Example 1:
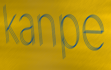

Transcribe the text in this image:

kanpe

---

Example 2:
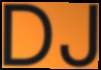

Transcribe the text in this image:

DJ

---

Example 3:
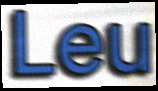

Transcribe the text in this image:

Leu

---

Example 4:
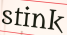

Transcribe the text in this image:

stink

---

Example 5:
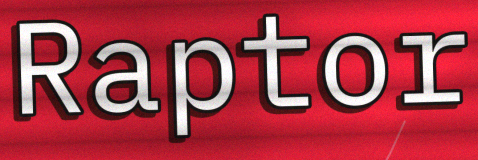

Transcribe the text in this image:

Raptor